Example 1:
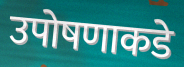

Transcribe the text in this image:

उपोषणाकडे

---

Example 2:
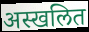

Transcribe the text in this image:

अस्खलित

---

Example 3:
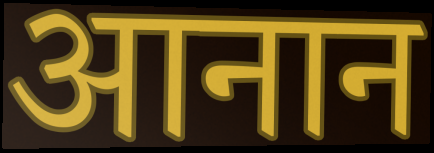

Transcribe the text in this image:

आनान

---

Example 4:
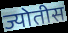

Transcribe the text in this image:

ज्योतीस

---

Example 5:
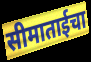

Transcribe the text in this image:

सीमाताईचा